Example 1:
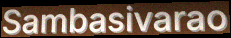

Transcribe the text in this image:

Sambasivarao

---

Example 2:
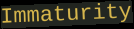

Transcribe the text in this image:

Immaturity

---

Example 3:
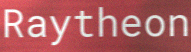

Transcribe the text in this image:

Raytheon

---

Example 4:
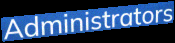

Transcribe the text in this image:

Administrators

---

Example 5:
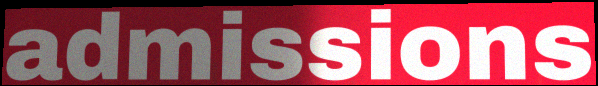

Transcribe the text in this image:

admissions